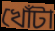
খোঁটা